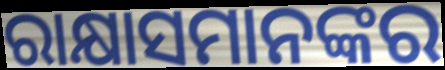
ରାକ୍ଷାସମାନଙ୍କର